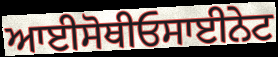
ਆਈਸੋਥੀਓਸਾਈਨੇਟ